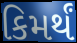
કિમર્થં